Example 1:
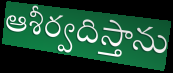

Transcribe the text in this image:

ఆశీర్వదిస్తాను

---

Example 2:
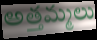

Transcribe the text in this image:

అత్తమ్మలు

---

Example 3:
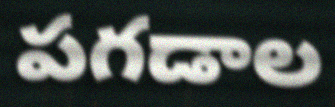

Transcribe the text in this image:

పగడాల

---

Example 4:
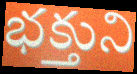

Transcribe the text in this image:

భక్తుని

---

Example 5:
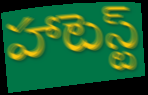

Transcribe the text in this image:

హాటెస్ట్